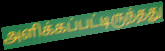
அளிக்கப்பட்டிருந்தது